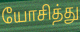
யோசித்து